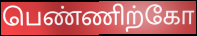
பெண்ணிற்கோ